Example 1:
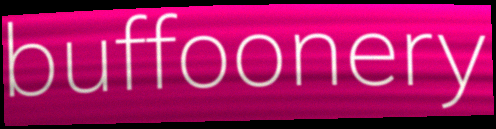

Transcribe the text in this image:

buffoonery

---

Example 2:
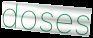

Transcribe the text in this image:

doses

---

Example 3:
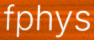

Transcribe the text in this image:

fphys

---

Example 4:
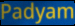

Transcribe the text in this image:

Padyam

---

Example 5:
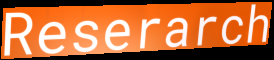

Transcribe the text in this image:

Reserarch